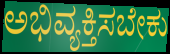
ಅಭಿವ್ಯಕ್ತಿಸಬೇಕು